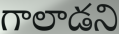
గాలాడని